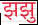
झझु